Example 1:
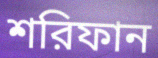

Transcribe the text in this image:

শরিফান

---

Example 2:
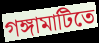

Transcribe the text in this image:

গঙ্গামাটিতে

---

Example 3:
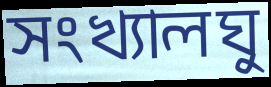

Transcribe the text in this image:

সংখ্যালঘু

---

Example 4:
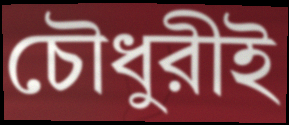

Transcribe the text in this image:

চৌধুরীই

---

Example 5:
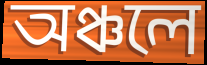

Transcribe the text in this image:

অঞ্চলে